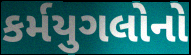
કર્મયુગલોનો